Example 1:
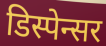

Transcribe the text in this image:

डिस्पेन्सर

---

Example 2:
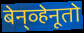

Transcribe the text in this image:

बेन्‌व्हेनूतो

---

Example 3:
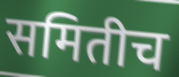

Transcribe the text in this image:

समितीच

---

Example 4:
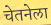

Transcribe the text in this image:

चेतनेला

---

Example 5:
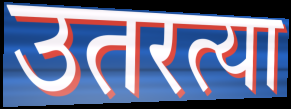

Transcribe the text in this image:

उतरत्या